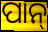
ପାନ୍